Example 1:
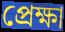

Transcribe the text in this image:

প্ৰেক্ষা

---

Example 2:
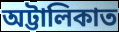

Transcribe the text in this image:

অট্টালিকাত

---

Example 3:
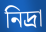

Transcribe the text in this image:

নিদ্ৰা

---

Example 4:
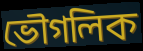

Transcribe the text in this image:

ভৌগলিক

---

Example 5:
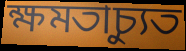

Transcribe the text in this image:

ক্ষমতাচ্যুত